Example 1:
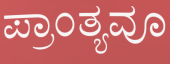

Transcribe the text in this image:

ಪ್ರಾಂತ್ಯವೂ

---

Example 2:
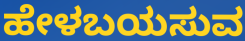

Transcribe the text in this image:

ಹೇಳಬಯಸುವ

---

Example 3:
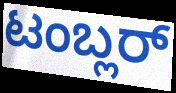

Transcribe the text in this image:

ಟಂಬ್ಲರ್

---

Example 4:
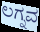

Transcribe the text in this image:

ಲಗ್ನವ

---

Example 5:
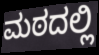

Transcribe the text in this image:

ಮಠದಲ್ಲಿ